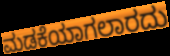
ಮಡಕೆಯಾಗಲಾರದು